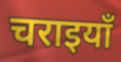
चराइयाँ